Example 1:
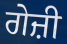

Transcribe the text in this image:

ਗੇਜ਼ੀ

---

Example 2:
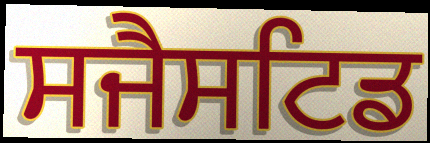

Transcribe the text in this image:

ਸਜੈਸਟਿਡ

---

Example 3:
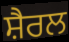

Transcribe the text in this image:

ਸ਼ੈਰਲ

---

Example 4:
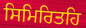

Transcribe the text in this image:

ਸਿਮਿਰਿਤਹਿ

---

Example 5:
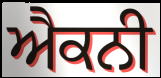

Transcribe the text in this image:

ਐਕਨੀ